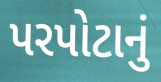
પરપોટાનું